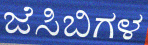
ಜೆಸಿಬಿಗಳ